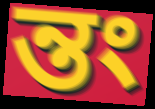
ন্তং